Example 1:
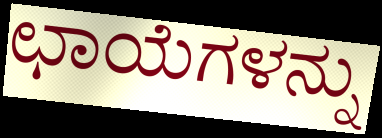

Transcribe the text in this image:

ಛಾಯೆಗಳನ್ನು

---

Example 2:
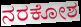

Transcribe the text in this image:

ನರಕೋಶ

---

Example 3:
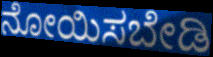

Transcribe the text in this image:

ನೋಯಿಸಬೇಡಿ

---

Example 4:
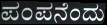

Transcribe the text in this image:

ಪಂಪನೆಂದು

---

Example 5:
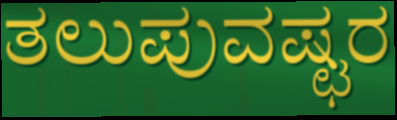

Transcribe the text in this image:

ತಲುಪುವಷ್ಟರ